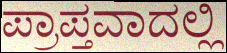
ಪ್ರಾಪ್ತವಾದಲ್ಲಿ